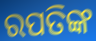
ରପତିଙ୍କ